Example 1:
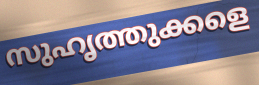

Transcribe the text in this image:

സുഹൃത്തുക്കളെ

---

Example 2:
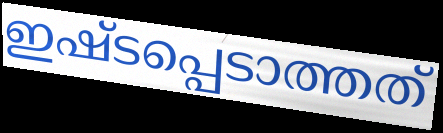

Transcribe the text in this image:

ഇഷ്ടപ്പെടാത്തത്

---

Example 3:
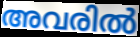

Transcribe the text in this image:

അവരിൽ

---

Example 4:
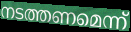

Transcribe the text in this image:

നടത്തണമെന്ന്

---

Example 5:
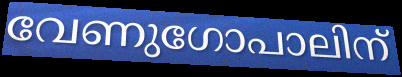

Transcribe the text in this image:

വേണുഗോപാലിന്